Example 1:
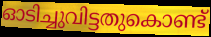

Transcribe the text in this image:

ഓടിച്ചുവിട്ടതുകൊണ്ട്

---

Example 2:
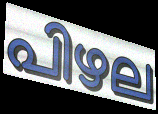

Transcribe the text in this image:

പിഴല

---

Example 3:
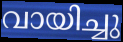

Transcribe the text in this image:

വായിച്ചു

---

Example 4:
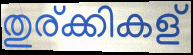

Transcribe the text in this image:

തുര്ക്കികള്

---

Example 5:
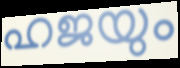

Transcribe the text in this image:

ഹജയും